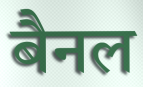
बैनल